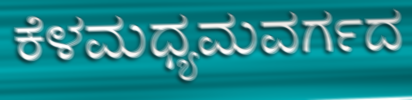
ಕೆಳಮಧ್ಯಮವರ್ಗದ